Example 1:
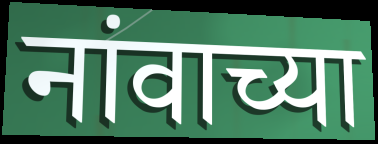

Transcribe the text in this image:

नांवाच्या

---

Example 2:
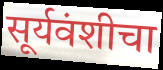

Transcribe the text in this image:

सूर्यवंशीचा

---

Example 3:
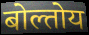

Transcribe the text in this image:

बोल्तोय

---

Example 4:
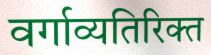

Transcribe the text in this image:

वर्गाव्यतिरिक्त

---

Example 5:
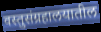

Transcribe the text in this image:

वस्तुसंग्रहालयातील